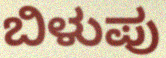
ಬಿಳುಪು